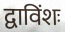
द्वाविंशः